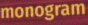
monogram